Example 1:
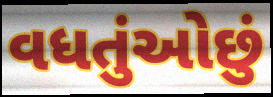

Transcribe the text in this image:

વધતુંઓછું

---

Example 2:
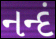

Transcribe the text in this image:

નન્દં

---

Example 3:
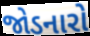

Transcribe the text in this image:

જોડનારો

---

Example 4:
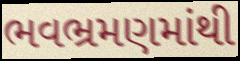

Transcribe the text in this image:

ભવભ્રમણમાંથી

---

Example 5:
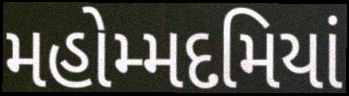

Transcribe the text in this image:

મહોમ્મદમિયાં